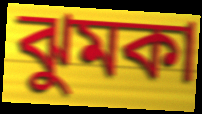
ঝুমকা